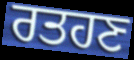
ਰਤਹਣ